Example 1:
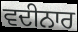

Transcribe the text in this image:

ਵਦੀਨਾਰ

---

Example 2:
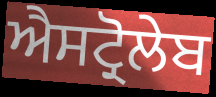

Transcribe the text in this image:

ਐਸਟ੍ਰੋਲੇਬ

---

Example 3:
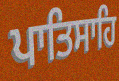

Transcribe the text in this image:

ਪਾਤਿਸਾਹਿ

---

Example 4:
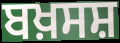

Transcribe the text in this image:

ਬਖ਼ਸਸ਼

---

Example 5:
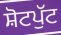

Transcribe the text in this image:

ਸ਼ੋਟਪੁੱਟ